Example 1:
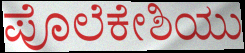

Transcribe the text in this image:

ಪೊಲೆಕೇಶಿಯು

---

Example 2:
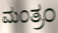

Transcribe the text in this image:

ಮಂತ್ರಂ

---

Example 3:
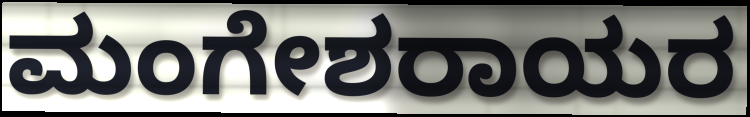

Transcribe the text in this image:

ಮಂಗೇಶರಾಯರ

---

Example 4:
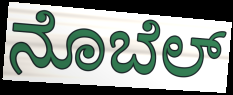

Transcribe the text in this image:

ನೊಬೆಲ್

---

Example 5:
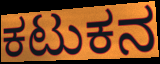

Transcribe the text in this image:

ಕಟುಕನ